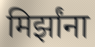
मिर्झांना